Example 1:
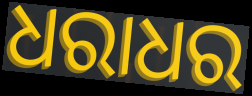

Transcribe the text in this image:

ଧରାଧର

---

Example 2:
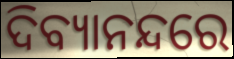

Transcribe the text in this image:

ଦିବ୍ୟାନନ୍ଦରେ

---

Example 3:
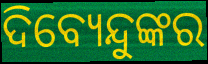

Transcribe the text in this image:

ଦିବ୍ୟେନ୍ଦୁଙ୍କର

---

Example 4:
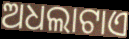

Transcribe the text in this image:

ଅଧଲାଟାଏ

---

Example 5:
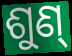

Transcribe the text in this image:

ଶୁଣ୍